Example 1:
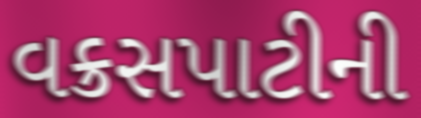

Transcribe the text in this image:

વક્રસપાટીની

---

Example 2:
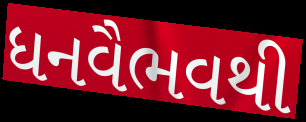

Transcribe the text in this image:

ધનવૈભવથી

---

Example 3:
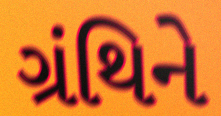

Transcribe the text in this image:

ગ્રંથિને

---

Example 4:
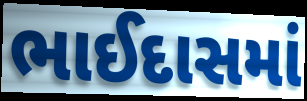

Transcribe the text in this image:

ભાઈદાસમાં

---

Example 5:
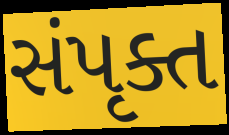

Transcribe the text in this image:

સંપૃક્ત